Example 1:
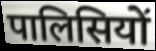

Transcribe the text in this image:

पालिसियों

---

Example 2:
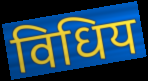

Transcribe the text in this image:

विधिय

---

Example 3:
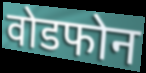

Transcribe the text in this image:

वोडफोन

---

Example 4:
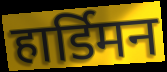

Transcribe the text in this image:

हार्डिमन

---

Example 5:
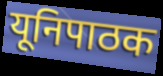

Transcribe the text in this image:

यूनिपाठक